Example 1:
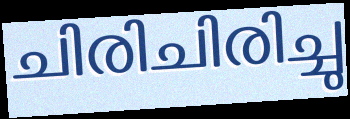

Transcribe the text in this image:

ചിരിചിരിച്ചു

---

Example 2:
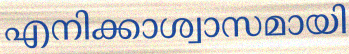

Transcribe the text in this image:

എനിക്കാശ്വാസമായി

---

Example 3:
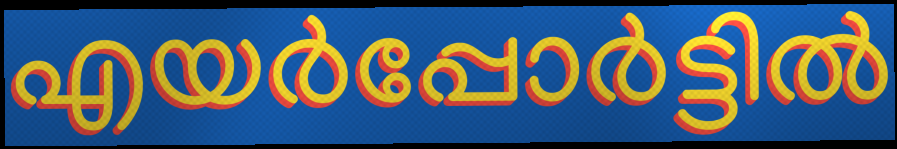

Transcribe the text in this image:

എയർപ്പോർട്ടിൽ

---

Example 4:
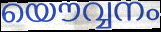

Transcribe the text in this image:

യൌവ്വനം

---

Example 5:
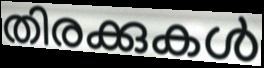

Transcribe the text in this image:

തിരക്കുകൾ